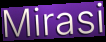
Mirasi